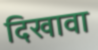
दिखावा